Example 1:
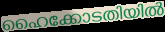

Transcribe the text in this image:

ഹൈക്കോടതിയിൽ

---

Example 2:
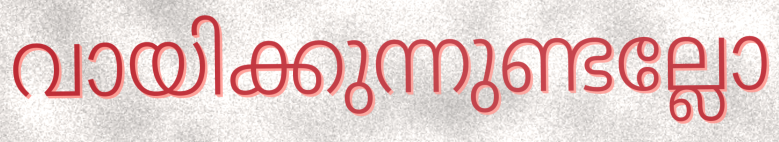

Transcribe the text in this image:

വായിക്കുന്നുണ്ടല്ലോ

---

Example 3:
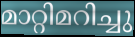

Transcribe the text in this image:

മാറ്റിമറിച്ചു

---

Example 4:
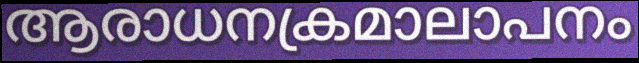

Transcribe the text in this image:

ആരാധനക്രമാലാപനം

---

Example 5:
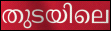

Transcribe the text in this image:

തുടയിലെ